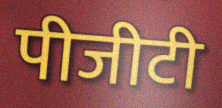
पीजीटी